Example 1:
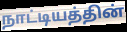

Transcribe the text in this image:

நாட்டியத்தின்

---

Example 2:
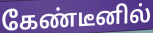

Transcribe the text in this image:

கேண்டீனில்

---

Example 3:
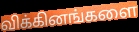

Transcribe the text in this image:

விக்கினங்களை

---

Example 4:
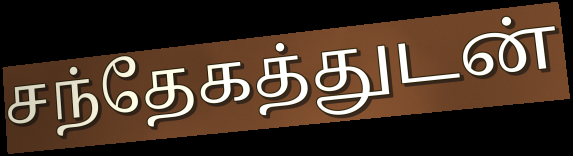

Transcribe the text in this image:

சந்தேகத்துடன்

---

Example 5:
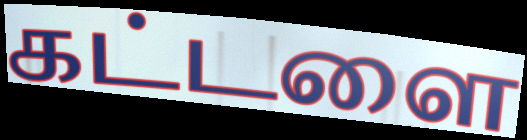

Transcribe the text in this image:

கட்டளை